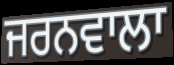
ਜਰਨਵਾਲਾ